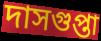
দাসগুপ্তা